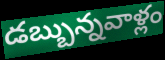
డబ్బున్నవాళ్లం